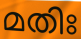
മതിഃ